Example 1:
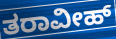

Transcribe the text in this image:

ತರಾವೀಹ್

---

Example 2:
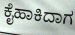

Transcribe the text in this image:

ಕೈಹಾಕಿದಾಗ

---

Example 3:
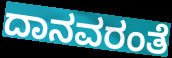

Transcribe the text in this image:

ದಾನವರಂತೆ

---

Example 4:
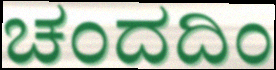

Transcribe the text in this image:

ಚಂದದಿಂ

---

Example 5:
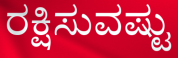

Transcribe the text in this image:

ರಕ್ಷಿಸುವಷ್ಟು